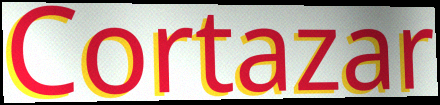
Cortazar